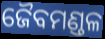
ଜୈବମଣ୍ଡଳ